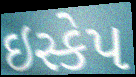
ઇસ્કેપ